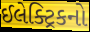
ઈલેક્ટ્રિકનો